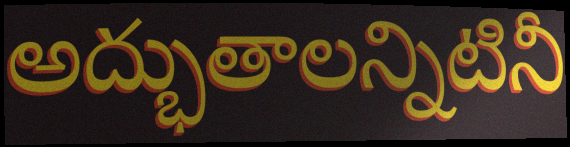
అద్భుతాలన్నిటినీ